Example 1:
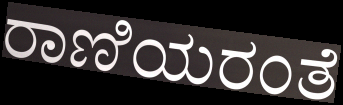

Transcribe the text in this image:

ರಾಣಿಯರಂತೆ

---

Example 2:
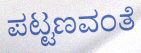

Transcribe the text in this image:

ಪಟ್ಟಣವಂತೆ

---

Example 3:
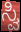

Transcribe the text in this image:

ಸ್ವಿ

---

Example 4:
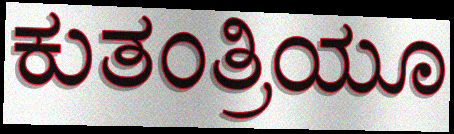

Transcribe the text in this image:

ಕುತಂತ್ರಿಯೂ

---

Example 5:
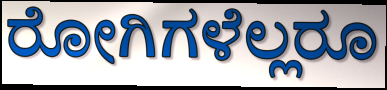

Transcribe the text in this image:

ರೋಗಿಗಳೆಲ್ಲರೂ